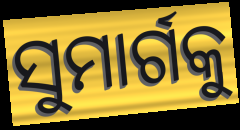
ସୁମାର୍ଗକୁ